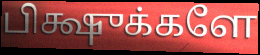
பிக்ஷுக்களே